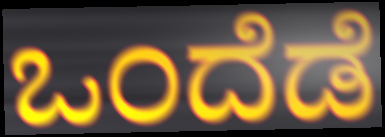
ಒಂದೆಡೆ